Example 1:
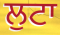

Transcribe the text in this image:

ਲੁਟਾ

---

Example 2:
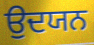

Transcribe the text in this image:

ਉਦਯਨ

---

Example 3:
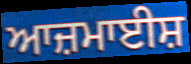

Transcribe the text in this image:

ਆਜ਼ਮਾਈਸ਼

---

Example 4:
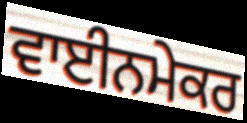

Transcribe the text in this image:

ਵਾਈਨਮੇਕਰ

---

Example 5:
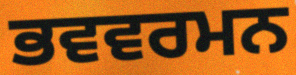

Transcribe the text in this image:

ਭਵਵਰਮਨ